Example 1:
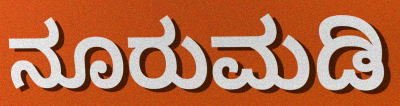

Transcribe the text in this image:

ನೂರುಮಡಿ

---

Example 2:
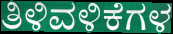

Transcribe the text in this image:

ತಿಳಿವಳಿಕೆಗಳ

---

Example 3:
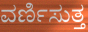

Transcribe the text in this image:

ವರ್ಣಿಸುತ್ತ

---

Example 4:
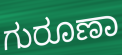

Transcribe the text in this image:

ಗುರೂಣಾ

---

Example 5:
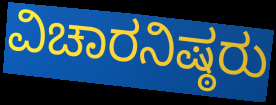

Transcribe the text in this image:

ವಿಚಾರನಿಷ್ಠರು